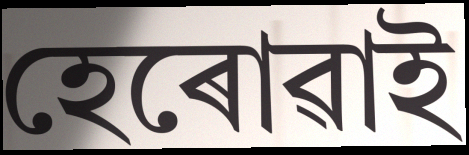
হেৰোৱাই